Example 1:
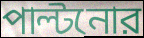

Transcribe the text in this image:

পাল্টনোর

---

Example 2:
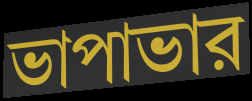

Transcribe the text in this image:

ভাপাভার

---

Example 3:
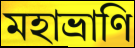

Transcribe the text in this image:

মহাভ্রাণি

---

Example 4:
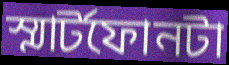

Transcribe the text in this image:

স্মার্টফোনটা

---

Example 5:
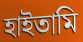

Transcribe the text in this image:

হাইতামি